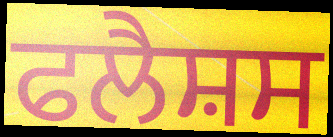
ਫਲੈਸ਼ਸ